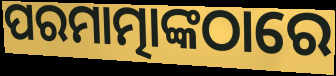
ପରମାତ୍ମାଙ୍କଠାରେ